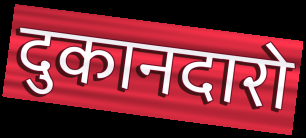
दुकानदारो